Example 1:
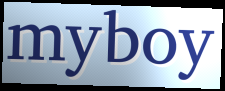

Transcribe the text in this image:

myboy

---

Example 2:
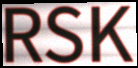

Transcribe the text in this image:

RSK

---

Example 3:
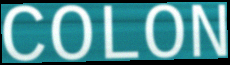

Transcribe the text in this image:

COLON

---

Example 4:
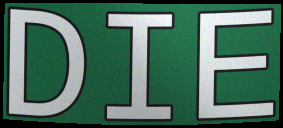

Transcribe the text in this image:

DIE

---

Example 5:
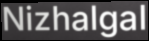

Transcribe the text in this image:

Nizhalgal